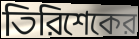
তিরিশেকের